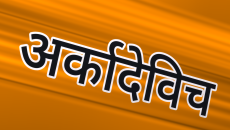
अर्कादेविच